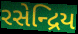
રસેન્દ્રિય